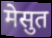
मेसुत